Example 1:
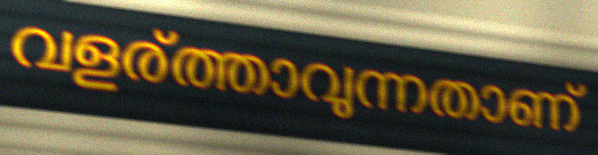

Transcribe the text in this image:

വളര്ത്താവുന്നതാണ്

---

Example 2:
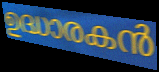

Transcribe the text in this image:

ഉദ്ധാരകൻ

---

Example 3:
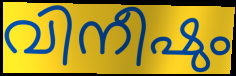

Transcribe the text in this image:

വിനീഷും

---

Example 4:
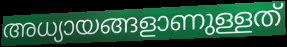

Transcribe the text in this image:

അധ്യായങ്ങളാണുള്ളത്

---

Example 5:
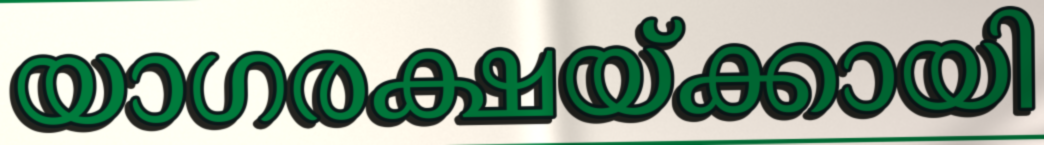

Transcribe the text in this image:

യാഗരക്ഷയ്ക്കായി